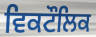
ਵਿਕਟੌਲਿਕ